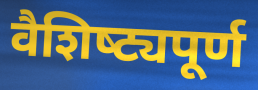
वैशिष्‍ट्यपूर्ण